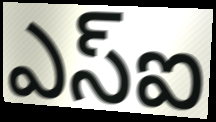
ఎస్ఐ